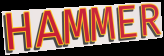
HAMMER